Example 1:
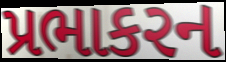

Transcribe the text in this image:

પ્રભાકરન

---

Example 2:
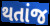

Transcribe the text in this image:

થતાંજ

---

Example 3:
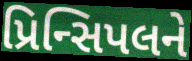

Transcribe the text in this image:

પ્રિન્સિપલને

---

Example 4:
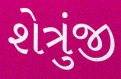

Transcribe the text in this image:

શેત્રુંજી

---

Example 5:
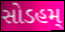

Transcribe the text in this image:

સોડહમ્